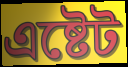
এষ্টেট